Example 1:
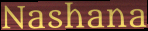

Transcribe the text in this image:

Nashana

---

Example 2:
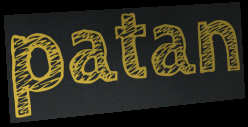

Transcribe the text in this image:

patan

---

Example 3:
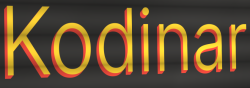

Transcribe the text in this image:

Kodinar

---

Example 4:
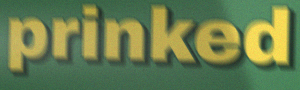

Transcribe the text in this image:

prinked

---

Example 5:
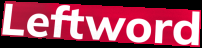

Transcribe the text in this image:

Leftword